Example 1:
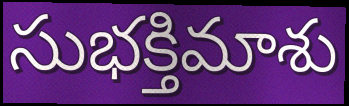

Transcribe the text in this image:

సుభక్తిమాశు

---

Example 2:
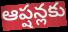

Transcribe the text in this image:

ఆప్షన్లకు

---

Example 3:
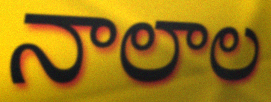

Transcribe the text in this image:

నాలాల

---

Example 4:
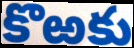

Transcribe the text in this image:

కొఱకు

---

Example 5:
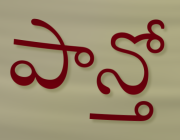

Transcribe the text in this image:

పాన్తో